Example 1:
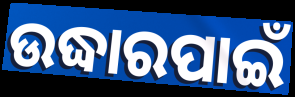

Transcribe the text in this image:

ଉଦ୍ଧାରପାଇଁ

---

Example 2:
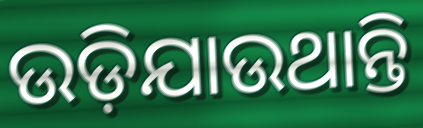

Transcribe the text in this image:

ଉଡ଼ିଯାଉଥାନ୍ତି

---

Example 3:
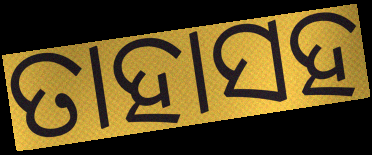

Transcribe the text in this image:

ତାହାସହ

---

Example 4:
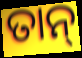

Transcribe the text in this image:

ତାନ୍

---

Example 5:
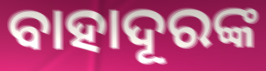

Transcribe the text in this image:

ବାହାଦୂରଙ୍କ